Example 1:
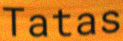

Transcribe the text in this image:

Tatas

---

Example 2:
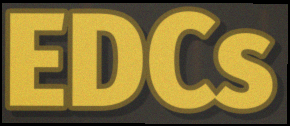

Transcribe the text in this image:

EDCs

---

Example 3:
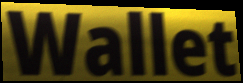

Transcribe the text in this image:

Wallet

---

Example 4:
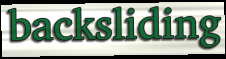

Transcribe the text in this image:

backsliding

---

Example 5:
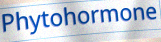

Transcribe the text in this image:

Phytohormone